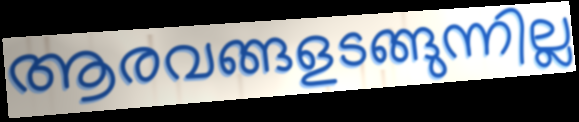
ആരവങ്ങളടങ്ങുന്നില്ല